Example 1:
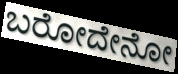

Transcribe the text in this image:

ಬರೋದೇನೋ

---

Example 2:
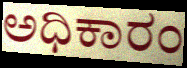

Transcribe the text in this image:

ಅಧಿಕಾರಂ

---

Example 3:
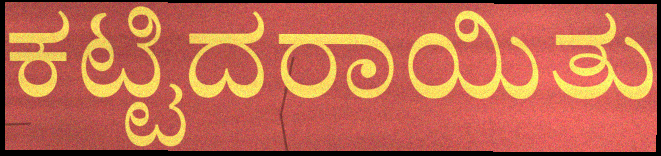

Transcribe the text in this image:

ಕಟ್ಟಿದರಾಯಿತು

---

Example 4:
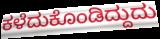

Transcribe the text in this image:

ಕಳೆದುಕೊಂಡಿದ್ದುದು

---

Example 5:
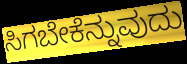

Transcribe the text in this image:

ಸಿಗಬೇಕೆನ್ನುವುದು